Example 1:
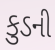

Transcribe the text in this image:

કુડની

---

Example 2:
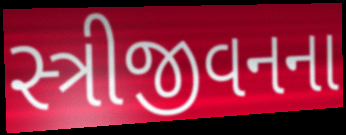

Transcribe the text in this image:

સ્ત્રીજીવનના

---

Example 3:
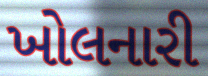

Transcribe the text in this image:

ખોલનારી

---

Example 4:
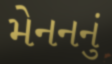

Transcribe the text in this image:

મેનનનું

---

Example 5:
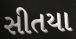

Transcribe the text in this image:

સીતયા